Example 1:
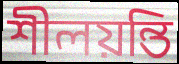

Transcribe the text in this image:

শীলয়ন্তি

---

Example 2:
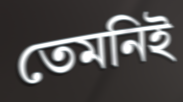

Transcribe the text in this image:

তেমনিই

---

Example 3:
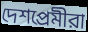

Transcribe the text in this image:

দেশপ্রেমীরা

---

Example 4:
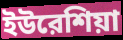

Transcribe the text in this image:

ইউরেশিয়া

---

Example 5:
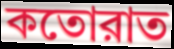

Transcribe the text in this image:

কতোরাত